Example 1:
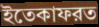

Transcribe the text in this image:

ইতেকাফরত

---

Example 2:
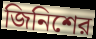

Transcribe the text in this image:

জিনিশের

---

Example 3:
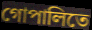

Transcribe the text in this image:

গোপালিতে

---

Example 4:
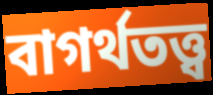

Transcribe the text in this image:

বাগর্থতত্ত্ব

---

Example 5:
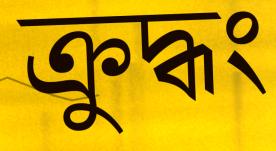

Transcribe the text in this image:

ক্রুদ্ধং